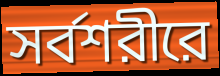
সর্বশরীরে